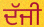
ਦੱਜੀ